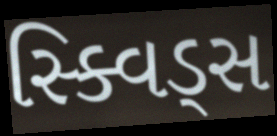
સ્ક્વિડ્સ